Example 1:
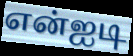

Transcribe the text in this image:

என்ஐடி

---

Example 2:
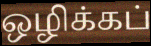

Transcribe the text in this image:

ஒழிக்கப்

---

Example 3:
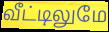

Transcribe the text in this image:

வீட்டிலுமே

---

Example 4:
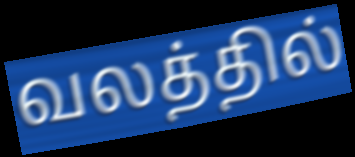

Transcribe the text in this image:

வலத்தில்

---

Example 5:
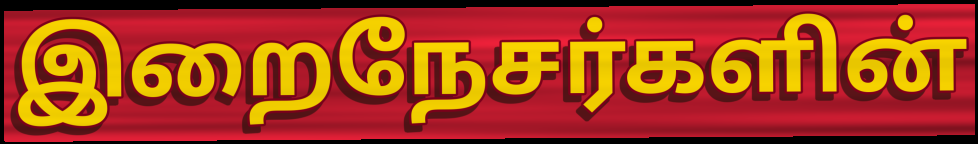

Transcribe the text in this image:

இறைநேசர்களின்